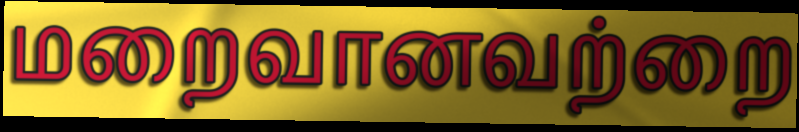
மறைவானவற்றை